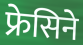
फ्रेसिने